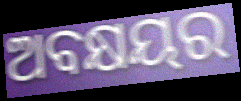
ଅବକ୍ଷୟର